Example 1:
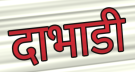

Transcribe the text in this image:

दाभाडी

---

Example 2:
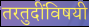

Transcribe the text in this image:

तरतुदींविषयी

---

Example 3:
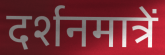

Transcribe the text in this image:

दर्शनमात्रें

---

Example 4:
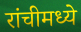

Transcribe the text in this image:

रांचीमध्ये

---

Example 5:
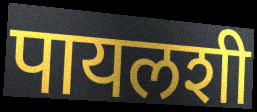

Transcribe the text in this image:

पायलशी